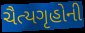
ચૈત્યગૃહોની